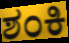
ಶಂಕಿ